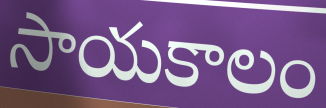
సాయకాలం